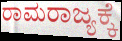
ರಾಮರಾಜ್ಯಕ್ಕೆ